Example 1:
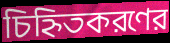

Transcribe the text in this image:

চিহ্নিতকরণের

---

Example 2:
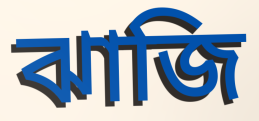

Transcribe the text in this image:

ঝাজি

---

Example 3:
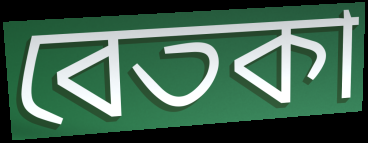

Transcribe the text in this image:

বেতকা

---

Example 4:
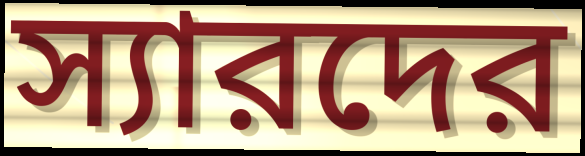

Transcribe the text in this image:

স্যারদের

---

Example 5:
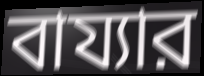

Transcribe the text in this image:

বায্যার